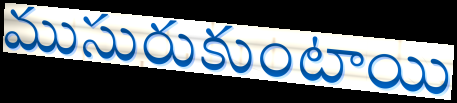
ముసురుకుంటాయి